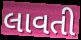
લાવતી